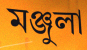
মঞ্জুলা